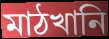
মাঠখানি